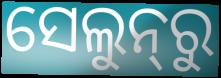
ସେଲୁନ୍‌ରୁ